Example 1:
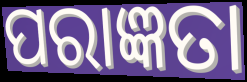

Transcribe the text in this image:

ପରାଜ୍ଞତା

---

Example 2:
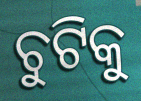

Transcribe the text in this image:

ଚୁଟିକୁ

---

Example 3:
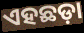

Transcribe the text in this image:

ଏହଛଡ଼ା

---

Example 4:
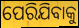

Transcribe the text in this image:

ପେରିଯିବାକୁ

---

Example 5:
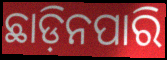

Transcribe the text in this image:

ଛାଡ଼ିନପାରି